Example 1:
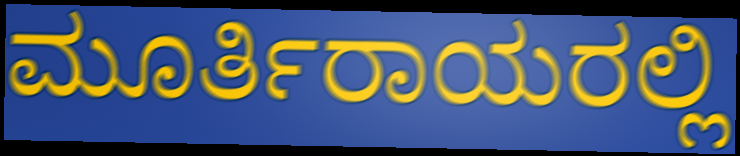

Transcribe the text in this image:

ಮೂರ್ತಿರಾಯರಲ್ಲಿ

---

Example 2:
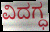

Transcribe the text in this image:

ವಿದಗ್ಧ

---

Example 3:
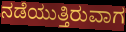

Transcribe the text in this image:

ನಡೆಯುತ್ತಿರುವಾಗ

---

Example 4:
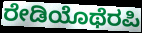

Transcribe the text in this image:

ರೇಡಿಯೊಥೆರಪಿ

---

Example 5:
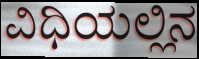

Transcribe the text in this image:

ವಿಧಿಯಲ್ಲಿನ